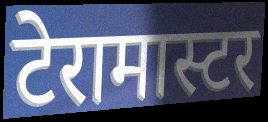
टेरामास्टर